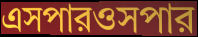
এসপারওসপার